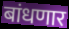
बांधणार